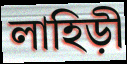
লাহিড়ী